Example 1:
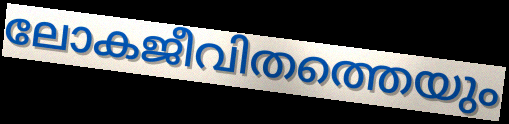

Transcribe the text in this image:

ലോകജീവിതത്തെയും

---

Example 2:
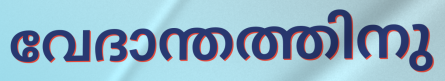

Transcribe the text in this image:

വേദാന്തത്തിനു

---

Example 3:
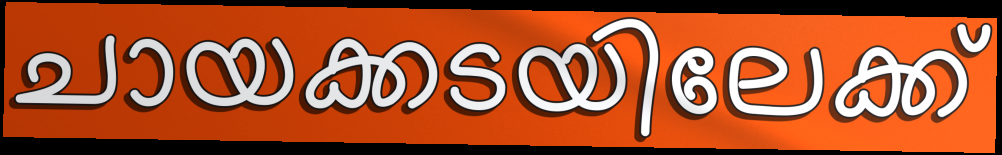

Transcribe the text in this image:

ചായക്കടയിലേക്ക്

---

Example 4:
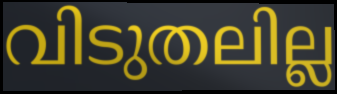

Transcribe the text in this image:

വിടുതലില്ല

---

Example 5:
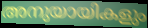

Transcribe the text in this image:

അനുയായികളും